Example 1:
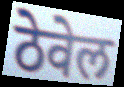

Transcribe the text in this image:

ठेवेल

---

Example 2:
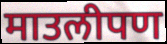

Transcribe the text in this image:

माउलीपण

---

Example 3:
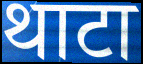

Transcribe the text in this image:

थाटा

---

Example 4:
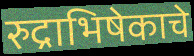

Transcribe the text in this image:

रुद्राभिषेकाचे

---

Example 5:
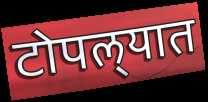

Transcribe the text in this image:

टोपल्यात